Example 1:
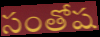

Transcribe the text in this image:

సంతోష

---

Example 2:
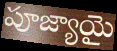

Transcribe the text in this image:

పూజ్యాయై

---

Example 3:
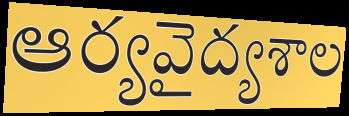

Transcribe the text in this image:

ఆర్యవైద్యశాల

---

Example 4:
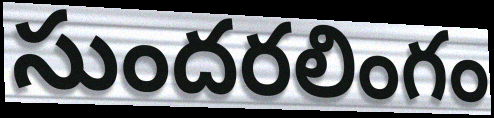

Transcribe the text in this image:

సుందరలింగం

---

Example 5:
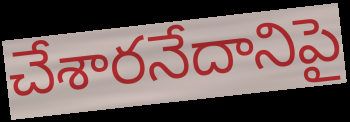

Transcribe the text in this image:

చేశారనేదానిపై